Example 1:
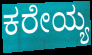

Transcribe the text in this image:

ಕರೇಯ್ಯ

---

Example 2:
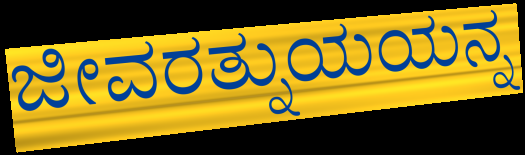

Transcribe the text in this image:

ಜೀವರತ್ನುಯಯನ್ನ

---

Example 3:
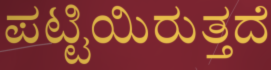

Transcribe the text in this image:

ಪಟ್ಟಿಯಿರುತ್ತದೆ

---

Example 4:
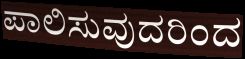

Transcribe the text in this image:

ಪಾಲಿಸುವುದರಿಂದ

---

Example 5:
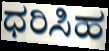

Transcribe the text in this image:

ಧರಿಸಿಹ